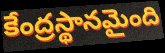
కేంద్రస్థానమైంది